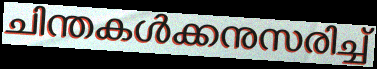
ചിന്തകൾക്കനുസരിച്ച്